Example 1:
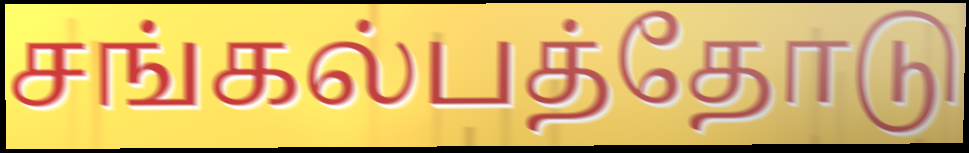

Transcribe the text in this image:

சங்கல்பத்தோடு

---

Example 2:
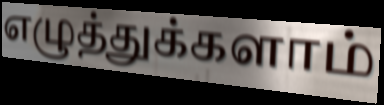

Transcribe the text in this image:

எழுத்துக்களாம்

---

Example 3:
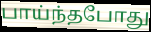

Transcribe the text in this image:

பாய்ந்தபோது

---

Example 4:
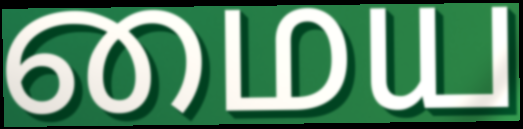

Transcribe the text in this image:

மைய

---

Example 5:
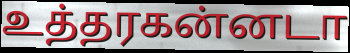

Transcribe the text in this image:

உத்தரகன்னடா